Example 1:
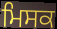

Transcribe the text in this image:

ਮਿਸਕ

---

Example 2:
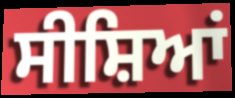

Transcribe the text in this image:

ਸੀਸ਼ਿਆਂ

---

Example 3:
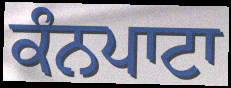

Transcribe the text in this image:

ਕੰਨਪਾਟਾ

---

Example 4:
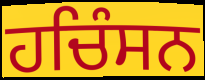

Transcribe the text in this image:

ਹਚਿੰਸਨ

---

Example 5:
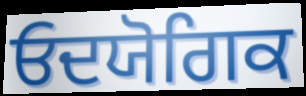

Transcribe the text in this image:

ਓਦਯੋਗਿਕ